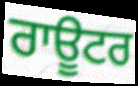
ਰਾਊਟਰ